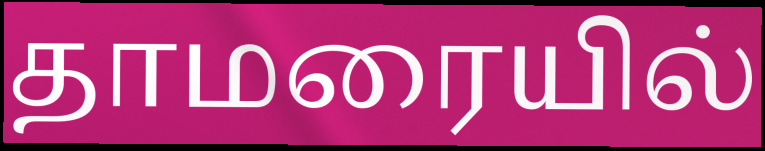
தாமரையில்